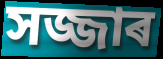
সজ্জাৰ